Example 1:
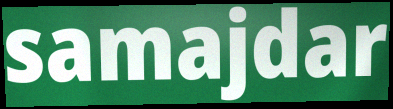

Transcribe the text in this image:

samajdar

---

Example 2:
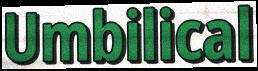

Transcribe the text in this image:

Umbilical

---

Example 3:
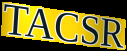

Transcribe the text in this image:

TACSR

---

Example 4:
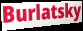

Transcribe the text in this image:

Burlatsky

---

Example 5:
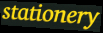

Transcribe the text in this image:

stationery